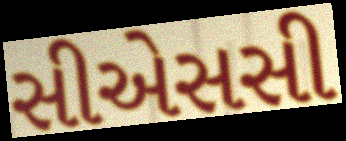
સીએસસી